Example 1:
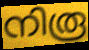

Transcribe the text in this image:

നിരൂ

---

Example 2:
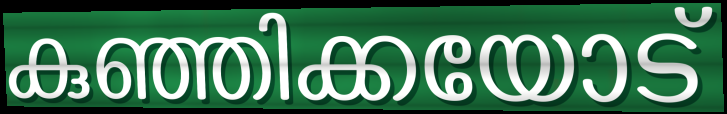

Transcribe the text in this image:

കുഞ്ഞിക്കയോട്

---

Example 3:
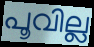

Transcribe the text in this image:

പൂവില്ല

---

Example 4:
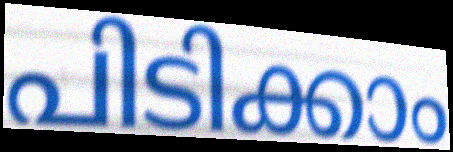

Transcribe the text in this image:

പിടിക്കാം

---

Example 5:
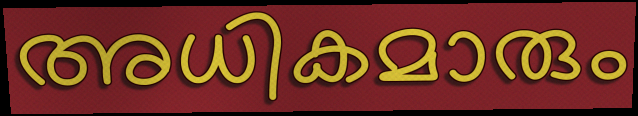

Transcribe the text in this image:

അധികമാരും